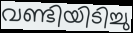
വണ്ടിയിടിച്ചു